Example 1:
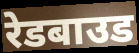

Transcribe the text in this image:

रेडबाउड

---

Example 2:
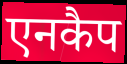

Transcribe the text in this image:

एनकैप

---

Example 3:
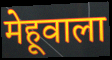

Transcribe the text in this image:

मेहूवाला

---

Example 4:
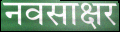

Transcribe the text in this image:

नवसाक्षर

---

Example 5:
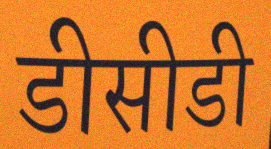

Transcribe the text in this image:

डीसीडी